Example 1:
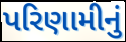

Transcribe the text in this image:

પરિણામીનું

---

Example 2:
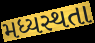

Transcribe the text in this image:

મધ્યસ્થતા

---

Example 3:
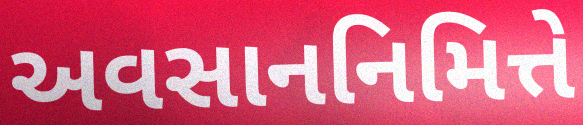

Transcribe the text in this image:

અવસાનનિમિત્તે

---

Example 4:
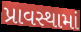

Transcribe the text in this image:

પ્રાવસ્થામાં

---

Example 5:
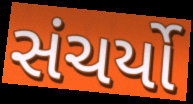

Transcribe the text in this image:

સંચર્યો